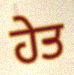
ਹੇਤ